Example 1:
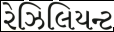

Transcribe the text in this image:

રેઝિલિયન્ટ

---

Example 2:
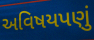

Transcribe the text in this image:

અવિષયપણું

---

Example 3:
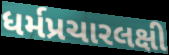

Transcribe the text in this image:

ધર્મપ્રચારલક્ષી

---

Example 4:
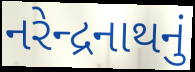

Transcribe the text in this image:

નરેન્દ્રનાથનું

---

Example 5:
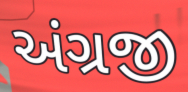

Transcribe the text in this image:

અંગ્રજી